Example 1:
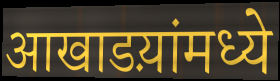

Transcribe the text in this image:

आखाडय़ांमध्ये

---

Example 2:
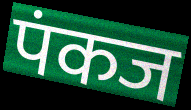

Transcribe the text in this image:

पंकज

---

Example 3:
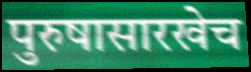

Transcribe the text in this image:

पुरुषासारखेच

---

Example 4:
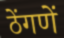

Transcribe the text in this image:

ठेंगणें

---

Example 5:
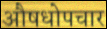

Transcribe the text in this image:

औषधोपचार